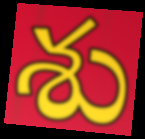
శు